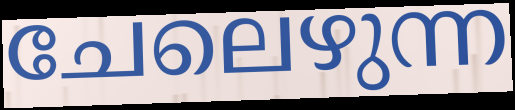
ചേലെഴുന്ന